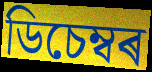
ডিচেম্বৰ